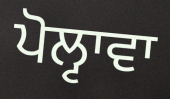
ਪੋਲ੍ਟਾਵਾ